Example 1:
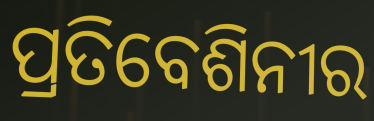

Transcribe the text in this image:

ପ୍ରତିବେଶିନୀର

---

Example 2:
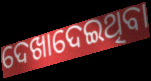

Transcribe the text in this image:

ଦେଖାଦେଇଥିବା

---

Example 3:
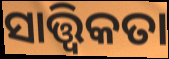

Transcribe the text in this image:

ସାତ୍ତ୍ବିକତା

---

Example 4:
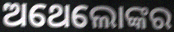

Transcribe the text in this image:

ଅଥେଲୋଙ୍କର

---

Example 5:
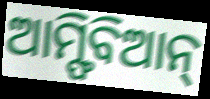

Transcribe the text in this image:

ଆମ୍ଫିବିଆନ୍